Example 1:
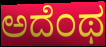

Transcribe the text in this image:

ಅದೆಂಥ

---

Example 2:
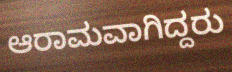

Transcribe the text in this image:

ಆರಾಮವಾಗಿದ್ದರು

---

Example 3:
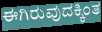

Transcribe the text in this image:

ಈಗಿರುವುದಕ್ಕಿಂತ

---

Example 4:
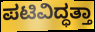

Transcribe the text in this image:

ಪಟಿವಿದ್ಧತ್ತಾ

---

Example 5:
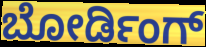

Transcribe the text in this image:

ಬೋರ್ಡಿಂಗ್